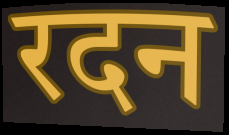
रदन